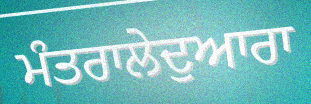
ਮੰਤਰਾਲੇਦੁਆਰਾ